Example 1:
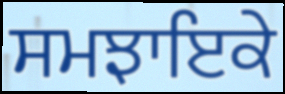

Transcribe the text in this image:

ਸਮਝਾਇਕੇ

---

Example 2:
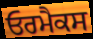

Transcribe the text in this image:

ਓਰਮੈਕਸ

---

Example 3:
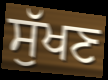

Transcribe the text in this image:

ਸੁੱਖਣ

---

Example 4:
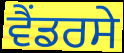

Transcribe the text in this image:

ਵੈਂਡਰਸੇ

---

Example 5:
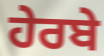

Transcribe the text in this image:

ਹੇਰਬੇ